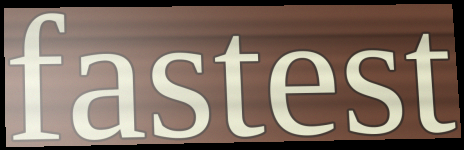
fastest